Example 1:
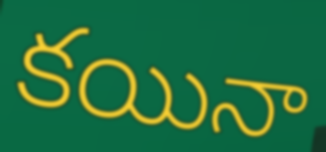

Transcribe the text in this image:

కయినా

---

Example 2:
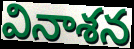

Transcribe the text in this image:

వినాశన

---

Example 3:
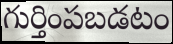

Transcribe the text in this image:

గుర్తింపబడటం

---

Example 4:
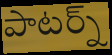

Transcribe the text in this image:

పాటర్న్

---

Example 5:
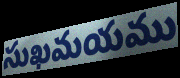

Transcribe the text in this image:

సుఖమయము